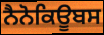
ਨੈਨੋਕਿਊਬਸ